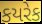
કયરેક